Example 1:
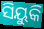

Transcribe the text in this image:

ସିୟୁକି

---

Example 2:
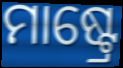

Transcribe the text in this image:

ମାଷ୍ଟ୍ରେ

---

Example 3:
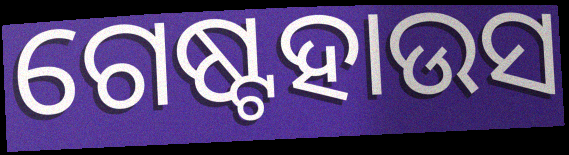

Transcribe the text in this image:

ଗେଷ୍ଟହାଉସ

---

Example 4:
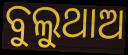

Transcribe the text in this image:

ବୁଲୁଥାଅ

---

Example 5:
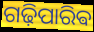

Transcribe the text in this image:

ଗଢ଼ିପାରିଵ